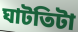
ঘাটতিটা